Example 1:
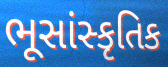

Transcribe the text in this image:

ભૂસાંસ્કૃતિક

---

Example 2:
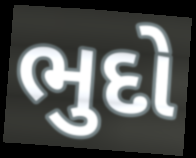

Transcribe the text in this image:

ભુદો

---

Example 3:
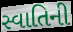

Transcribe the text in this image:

સ્વાતિની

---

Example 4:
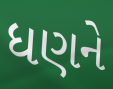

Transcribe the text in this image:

ધણને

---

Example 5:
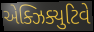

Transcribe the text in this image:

એક્ઝિક્યુટિવે